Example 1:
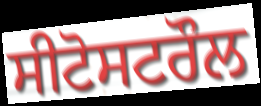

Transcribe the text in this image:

ਸੀਟੋਸਟਰੌਲ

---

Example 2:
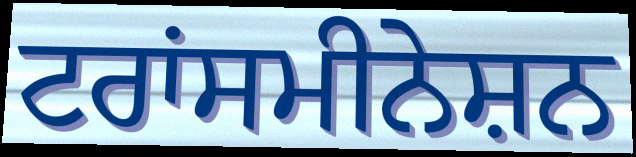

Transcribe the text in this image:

ਟਰਾਂਸਮੀਨੇਸ਼ਨ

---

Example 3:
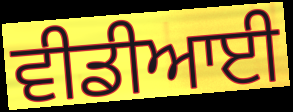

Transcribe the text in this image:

ਵੀਡੀਆਈ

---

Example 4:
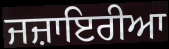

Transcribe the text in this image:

ਜਜ਼ਾਇਰੀਆ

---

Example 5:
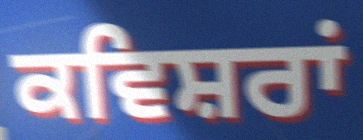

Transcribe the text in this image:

ਕਵਿਸ਼ਰਾਂ